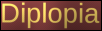
Diplopia